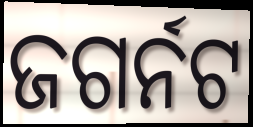
ଜଗର୍ନଟ